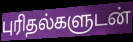
புரிதல்களுடன்